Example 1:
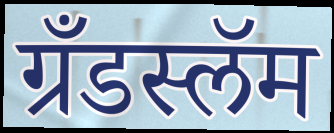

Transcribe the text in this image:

ग्रँडस्लॅम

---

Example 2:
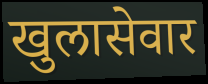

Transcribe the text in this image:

खुलासेवार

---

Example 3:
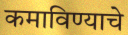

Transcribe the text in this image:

कमाविण्याचे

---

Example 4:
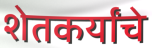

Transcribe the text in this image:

शेतकर्यांचे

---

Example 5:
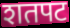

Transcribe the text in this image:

शतपट